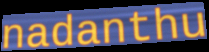
nadanthu